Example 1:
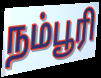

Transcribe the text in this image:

நம்பூரி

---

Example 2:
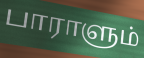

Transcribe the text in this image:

பாராளும்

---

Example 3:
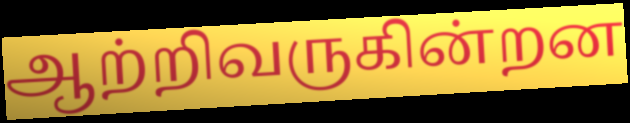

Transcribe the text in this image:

ஆற்றிவருகின்றன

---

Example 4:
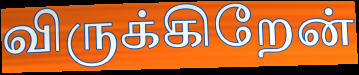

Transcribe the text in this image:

விருக்கிறேன்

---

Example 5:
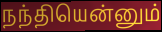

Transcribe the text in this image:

நந்தியென்னும்